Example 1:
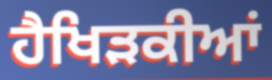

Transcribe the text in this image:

ਹੈਖਿੜਕੀਆਂ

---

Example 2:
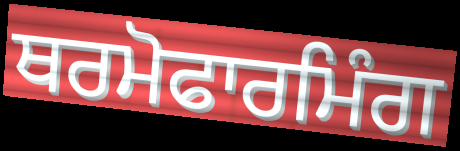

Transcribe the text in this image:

ਥਰਮੋਫਾਰਮਿੰਗ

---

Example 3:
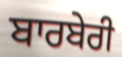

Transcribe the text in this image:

ਬਾਰਬੇਰੀ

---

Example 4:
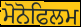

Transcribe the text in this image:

ਮੋਨੋਫਿਲਮ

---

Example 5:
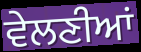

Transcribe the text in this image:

ਵੇਲਣੀਆਂ